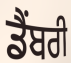
ਡੈਂਬਰੀ